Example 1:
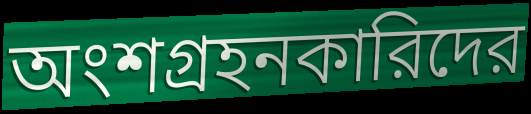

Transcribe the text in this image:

অংশগ্রহনকারিদের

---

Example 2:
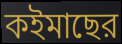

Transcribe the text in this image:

কইমাছের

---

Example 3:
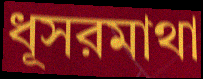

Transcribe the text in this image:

ধূসরমাথা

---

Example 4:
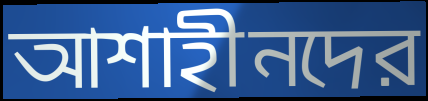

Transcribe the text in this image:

আশাহীনদের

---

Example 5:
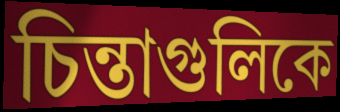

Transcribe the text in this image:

চিন্তাগুলিকে